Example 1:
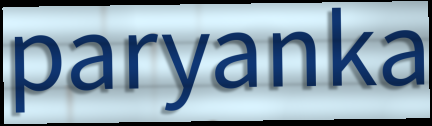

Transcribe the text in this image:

paryanka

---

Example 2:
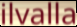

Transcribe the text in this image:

ilvalla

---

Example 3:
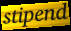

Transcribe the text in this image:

stipend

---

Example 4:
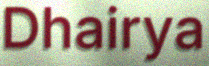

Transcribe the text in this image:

Dhairya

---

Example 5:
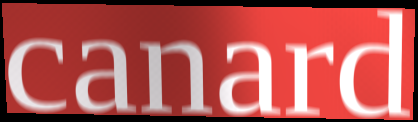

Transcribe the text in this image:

canard